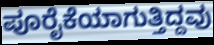
ಪೂರೈಕೆಯಾಗುತ್ತಿದ್ದವು